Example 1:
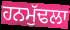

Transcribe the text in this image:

ਹਨਮੁੱਢਲਾ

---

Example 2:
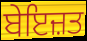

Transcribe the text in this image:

ਬੇਇਜ਼ਤ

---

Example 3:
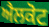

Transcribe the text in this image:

ਐਲਕੋਟ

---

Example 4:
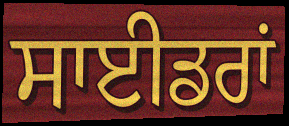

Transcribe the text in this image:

ਸਾਈਡਰਾਂ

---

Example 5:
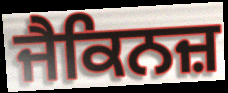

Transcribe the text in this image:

ਜੈਕਿਨਜ਼